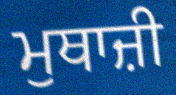
ਮੁਥਾਜ਼ੀ